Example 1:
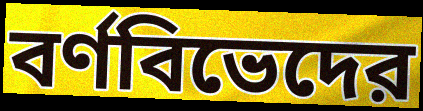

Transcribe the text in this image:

বর্ণবিভেদের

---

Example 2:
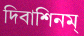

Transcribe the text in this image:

দিবাশিনম্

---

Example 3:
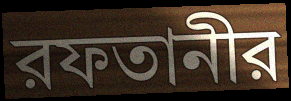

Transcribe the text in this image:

রফতানীর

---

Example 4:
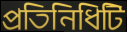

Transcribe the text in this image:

প্রতিনিধিটি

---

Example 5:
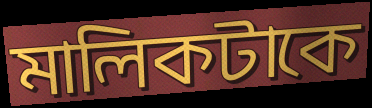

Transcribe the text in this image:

মালিকটাকে